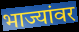
भाज्यांवर